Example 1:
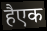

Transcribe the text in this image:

हैएक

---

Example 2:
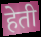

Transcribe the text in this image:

हेती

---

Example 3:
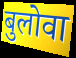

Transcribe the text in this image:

बुलोवा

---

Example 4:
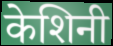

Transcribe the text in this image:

केशिनी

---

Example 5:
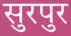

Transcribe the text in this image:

सुरपुर